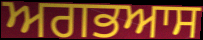
ਅਗਭਆਸ